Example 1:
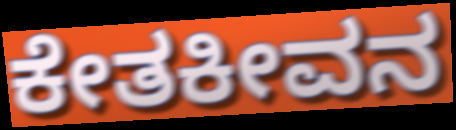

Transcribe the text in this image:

ಕೇತಕೀವನ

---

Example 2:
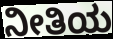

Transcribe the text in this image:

ನೀತಿಯ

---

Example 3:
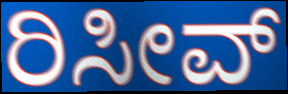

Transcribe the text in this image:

ರಿಸೀವ್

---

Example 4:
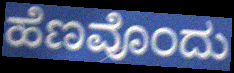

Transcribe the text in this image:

ಹೆಣವೊಂದು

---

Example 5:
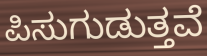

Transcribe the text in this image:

ಪಿಸುಗುಡುತ್ತವೆ